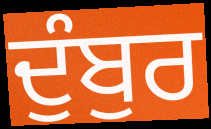
ਦੁੰਬੁਰ